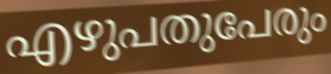
എഴുപതുപേരും